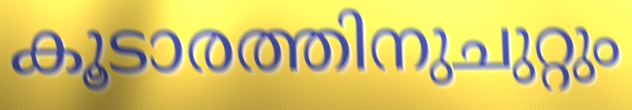
കൂടാരത്തിനുചുറ്റും